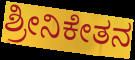
ಶ್ರೀನಿಕೇತನ